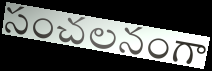
సంచలనంగా